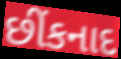
છીંકનાદ